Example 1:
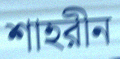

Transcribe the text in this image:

শাহরীন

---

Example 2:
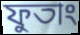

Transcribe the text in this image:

ফুতাং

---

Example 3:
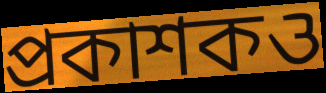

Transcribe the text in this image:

প্রকাশকও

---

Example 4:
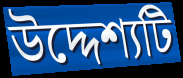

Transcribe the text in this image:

উদ্দেশ্যটি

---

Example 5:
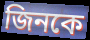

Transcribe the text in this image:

জিনকে